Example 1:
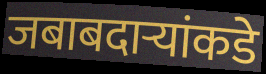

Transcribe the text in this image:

जबाबदाऱ्यांकडे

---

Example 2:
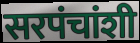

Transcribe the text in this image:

सरपंचांशी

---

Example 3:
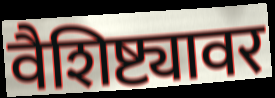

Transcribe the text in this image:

वैशिष्ट्यावर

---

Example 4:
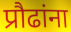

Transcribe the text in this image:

प्रौढांना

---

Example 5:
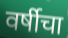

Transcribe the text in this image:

वर्षीचा